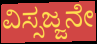
ವಿಸ್ಸಜ್ಜನೇ